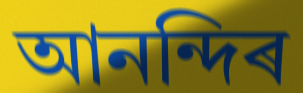
আনন্দিৰ